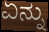
ಏನ್ನು